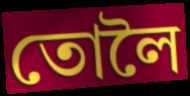
তোলৈ